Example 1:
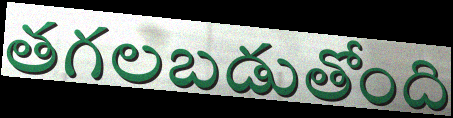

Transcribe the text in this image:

తగలబడుతోంది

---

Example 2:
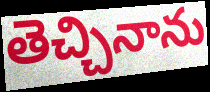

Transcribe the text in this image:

తెచ్చినాను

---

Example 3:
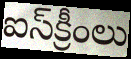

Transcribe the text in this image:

ఐస్‌క్రీంలు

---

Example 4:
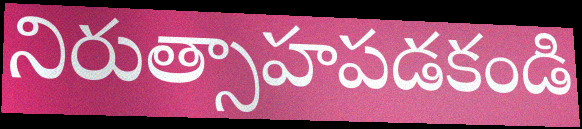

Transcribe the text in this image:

నిరుత్సాహపడకండి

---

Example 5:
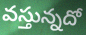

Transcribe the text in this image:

వస్తున్నదో